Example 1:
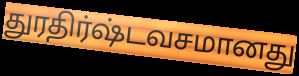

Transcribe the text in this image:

துரதிர்ஷ்டவசமானது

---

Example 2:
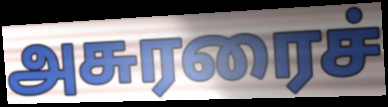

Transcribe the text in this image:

அசுரரைச்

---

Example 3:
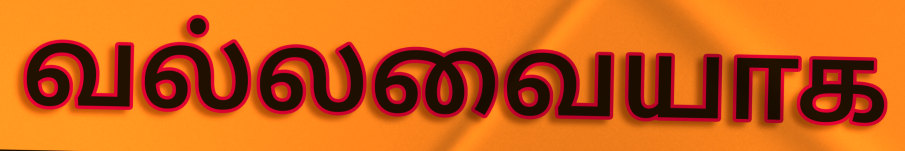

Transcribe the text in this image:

வல்லவையாக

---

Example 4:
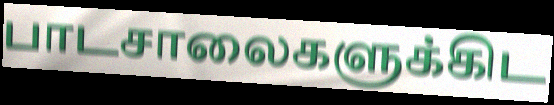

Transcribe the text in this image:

பாடசாலைகளுக்கிட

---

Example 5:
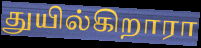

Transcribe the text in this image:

துயில்கிறாரா